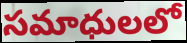
సమాధులలో